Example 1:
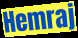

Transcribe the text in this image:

Hemraj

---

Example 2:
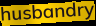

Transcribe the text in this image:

husbandry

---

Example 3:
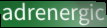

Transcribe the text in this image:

adrenergic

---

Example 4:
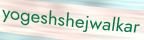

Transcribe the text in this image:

yogeshshejwalkar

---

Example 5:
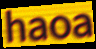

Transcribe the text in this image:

haoa